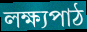
লক্ষ্যপাঠ